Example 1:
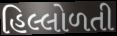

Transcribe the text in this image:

હિલ્લોળતી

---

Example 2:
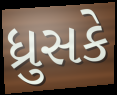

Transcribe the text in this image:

ધ્રુસકે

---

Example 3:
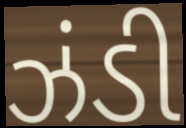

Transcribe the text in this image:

ઝંડી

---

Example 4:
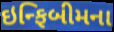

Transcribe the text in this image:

ઇન્ફિબીમના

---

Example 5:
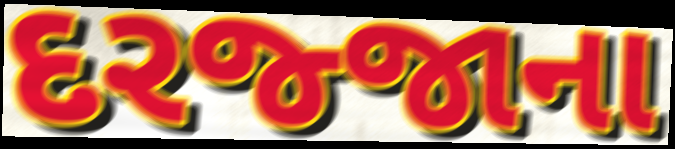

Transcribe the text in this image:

દરજ્જાના